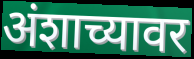
अंशाच्यावर